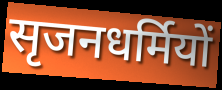
सृजनधर्मियों